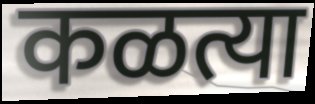
कळत्या